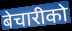
बेचारीको